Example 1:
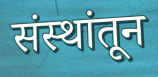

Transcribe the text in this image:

संस्थांतून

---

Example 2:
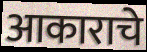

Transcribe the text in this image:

आकाराचे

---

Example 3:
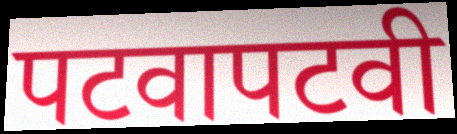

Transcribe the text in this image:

पटवापटवी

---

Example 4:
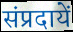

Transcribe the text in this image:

संप्रदायें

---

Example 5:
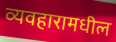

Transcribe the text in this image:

व्यवहारामधील